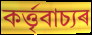
কৰ্ত্তৃবাচ্যৰ